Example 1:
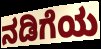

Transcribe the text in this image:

ನಡಿಗೆಯ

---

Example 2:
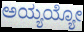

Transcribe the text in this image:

ಅಯ್ಯಯ್ಯೋ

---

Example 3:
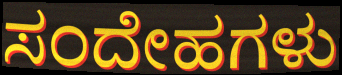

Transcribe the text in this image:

ಸಂದೇಹಗಳು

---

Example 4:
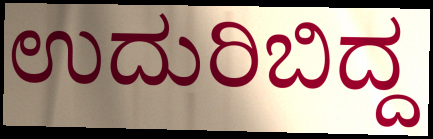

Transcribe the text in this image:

ಉದುರಿಬಿದ್ದ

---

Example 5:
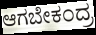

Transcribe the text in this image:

ಆಗಬೇಕಂದ್ರ